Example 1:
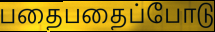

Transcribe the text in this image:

பதைபதைப்போடு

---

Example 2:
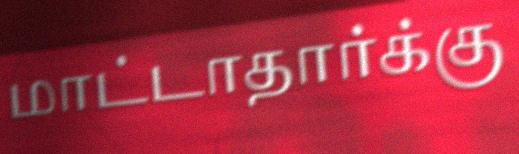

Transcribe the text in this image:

மாட்டாதார்க்கு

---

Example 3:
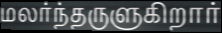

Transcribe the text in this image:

மலர்ந்தருளுகிறார்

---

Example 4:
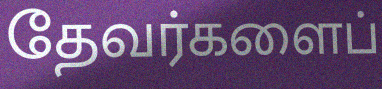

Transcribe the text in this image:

தேவர்களைப்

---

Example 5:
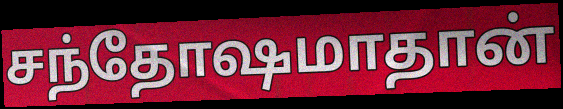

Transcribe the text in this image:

சந்தோஷமாதான்